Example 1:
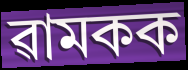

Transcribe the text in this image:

ৱামকক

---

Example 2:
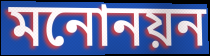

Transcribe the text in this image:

মনোনয়ন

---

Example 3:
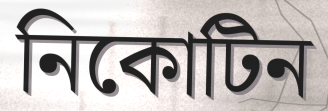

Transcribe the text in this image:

নিকোটিন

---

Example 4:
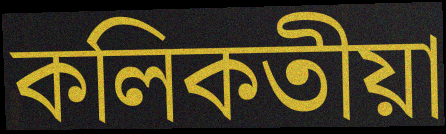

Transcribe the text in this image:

কলিকতীয়া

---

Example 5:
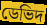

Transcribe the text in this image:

ডেভিদ